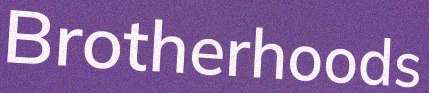
Brotherhoods